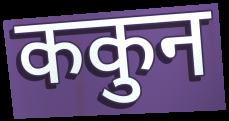
ककुन